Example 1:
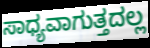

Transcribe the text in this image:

ಸಾಧ್ಯವಾಗುತ್ತದಲ್ಲ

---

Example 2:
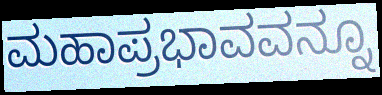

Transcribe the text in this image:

ಮಹಾಪ್ರಭಾವವನ್ನೂ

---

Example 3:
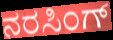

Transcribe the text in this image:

ನರಸಿಂಗ್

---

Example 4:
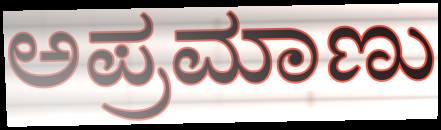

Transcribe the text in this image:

ಅಪ್ರಮಾಣು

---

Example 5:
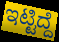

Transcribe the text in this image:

ಇಟ್ಟಿದ್ದೆ